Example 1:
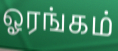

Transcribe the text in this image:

ஓரங்கம்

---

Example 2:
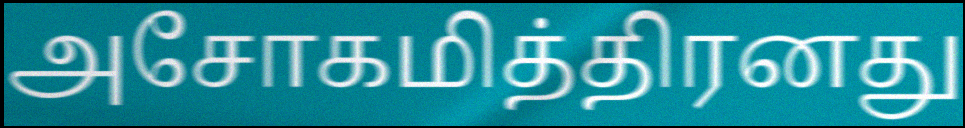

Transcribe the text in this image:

அசோகமித்திரனது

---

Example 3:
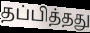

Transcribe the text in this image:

தப்பித்தது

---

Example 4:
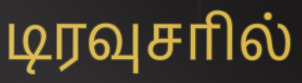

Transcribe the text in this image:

டிரவுசரில்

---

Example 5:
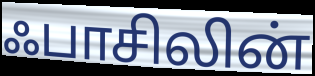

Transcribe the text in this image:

ஃபாசிலின்